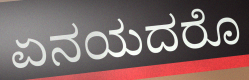
ಏನಯದರೊ